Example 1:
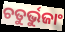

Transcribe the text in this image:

ଚତୁର୍ଭୁଜାଂ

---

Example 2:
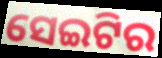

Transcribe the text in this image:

ସେଇଟିର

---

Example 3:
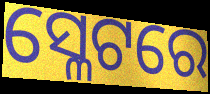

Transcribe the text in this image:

ସ୍ଳେଟରେ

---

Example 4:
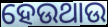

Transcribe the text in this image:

ହେଉଥାଉ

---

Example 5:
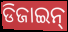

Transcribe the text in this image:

ଡିଜାଇନ୍